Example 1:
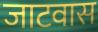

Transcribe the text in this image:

जाटवास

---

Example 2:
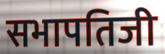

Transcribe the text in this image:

सभापतिजी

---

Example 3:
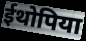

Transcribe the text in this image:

ईथोपिया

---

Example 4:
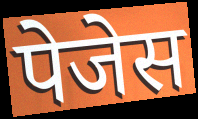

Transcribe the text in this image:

पेजेस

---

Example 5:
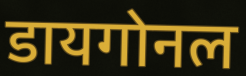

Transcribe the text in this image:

डायगोनल